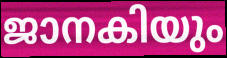
ജാനകിയും